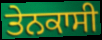
ਤੇਨਕਾਸੀ